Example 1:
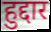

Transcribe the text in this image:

हुद्दार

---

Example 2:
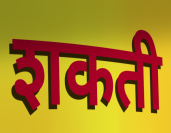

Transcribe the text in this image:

शकती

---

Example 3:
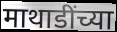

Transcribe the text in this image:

माथाडींच्या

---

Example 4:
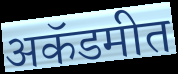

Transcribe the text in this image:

अकॅडमीत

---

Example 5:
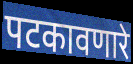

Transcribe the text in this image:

पटकावणारे